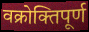
वक्रोक्तिपूर्ण